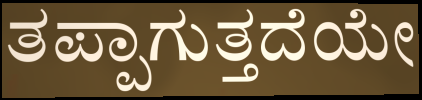
ತಪ್ಪಾಗುತ್ತದೆಯೇ